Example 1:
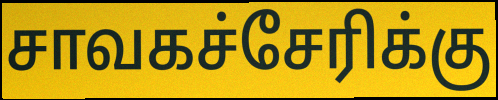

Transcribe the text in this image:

சாவகச்சேரிக்கு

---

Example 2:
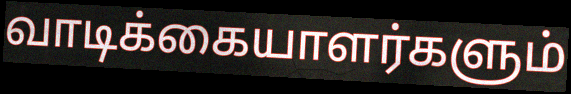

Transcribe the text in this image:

வாடிக்கையாளர்களும்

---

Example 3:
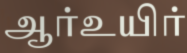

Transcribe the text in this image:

ஆர்உயிர்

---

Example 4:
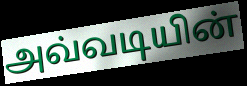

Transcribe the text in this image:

அவ்வடியின்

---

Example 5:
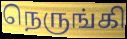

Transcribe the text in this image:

நெருங்கி